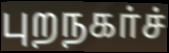
புறநகர்ச்